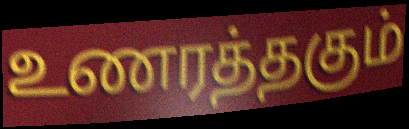
உணரத்தகும்